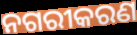
ନଗରୀକରଣ